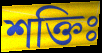
শক্তিঃ